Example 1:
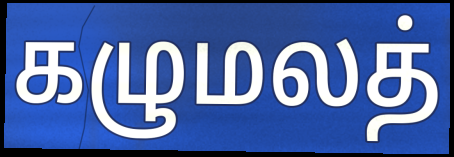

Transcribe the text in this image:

கழுமலத்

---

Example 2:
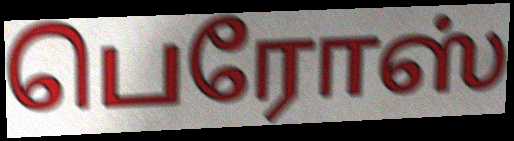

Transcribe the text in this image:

பெரோஸ்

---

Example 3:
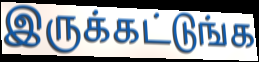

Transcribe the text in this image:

இருக்கட்டுங்க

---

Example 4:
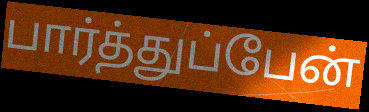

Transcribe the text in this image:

பார்த்துப்பேன்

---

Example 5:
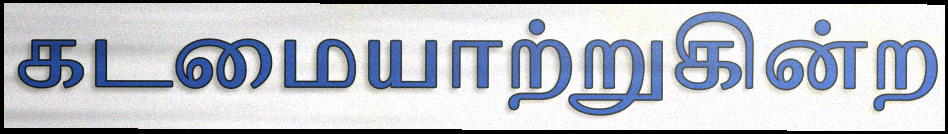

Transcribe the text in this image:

கடமையாற்றுகின்ற